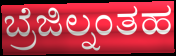
ಬ್ರೆಜಿಲ್ನಂತಹ